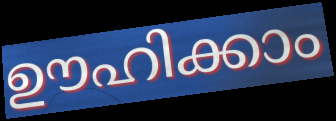
ഊഹിക്കാം